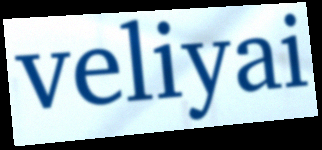
veliyai